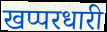
खप्परधारी